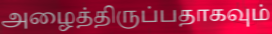
அழைத்திருப்பதாகவும்